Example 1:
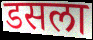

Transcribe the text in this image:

डसला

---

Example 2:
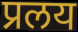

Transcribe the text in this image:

प्रलय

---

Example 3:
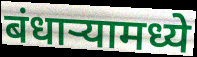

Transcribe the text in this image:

बंधाऱ्यामध्ये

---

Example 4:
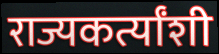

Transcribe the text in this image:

राज्यकर्त्यांशी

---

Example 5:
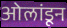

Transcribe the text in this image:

ओलांडून